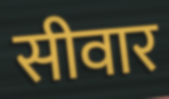
सीवार